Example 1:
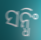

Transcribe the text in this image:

ସନ୍ଧିଂ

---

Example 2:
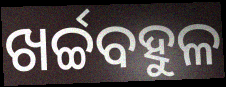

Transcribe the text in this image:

ଖର୍ଚ୍ଚବହୁଳ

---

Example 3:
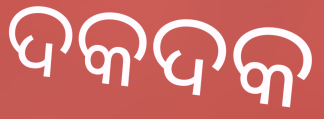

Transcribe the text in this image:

ଦକଦକ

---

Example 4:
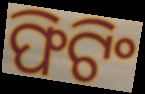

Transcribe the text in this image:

ଫିଟିଂ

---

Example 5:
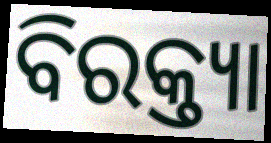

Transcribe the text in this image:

ବିରକ୍ତ୍ୟା